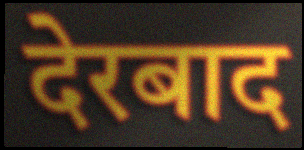
देरबाद